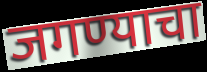
जगण्याचा